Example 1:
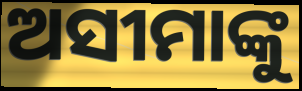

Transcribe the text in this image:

ଅସୀମାଙ୍କୁ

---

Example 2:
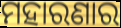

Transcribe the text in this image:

ମହାରଣାର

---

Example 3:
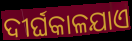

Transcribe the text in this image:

ଦୀର୍ଘକାଳଯାଏ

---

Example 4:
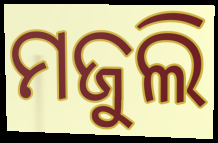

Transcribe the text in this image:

ମଜୁଲି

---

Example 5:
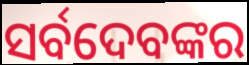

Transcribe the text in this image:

ସର୍ବଦେବଙ୍କର